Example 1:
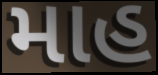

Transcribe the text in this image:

માહ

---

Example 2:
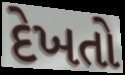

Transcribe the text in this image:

દેખતો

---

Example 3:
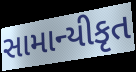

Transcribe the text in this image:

સામાન્યીકૃત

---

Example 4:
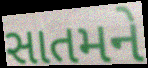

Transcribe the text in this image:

સાતમને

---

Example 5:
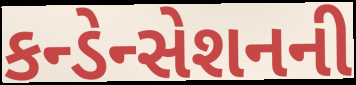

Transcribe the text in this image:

કન્ડેન્સેશનની